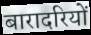
बारादरियों